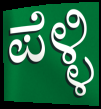
ಪೆಳ್ಳಿ